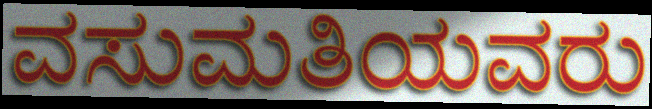
ವಸುಮತಿಯವರು